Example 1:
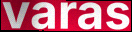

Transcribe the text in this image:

varas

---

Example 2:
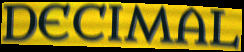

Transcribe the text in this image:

DECIMAL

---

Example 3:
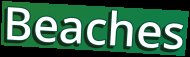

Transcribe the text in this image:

Beaches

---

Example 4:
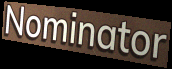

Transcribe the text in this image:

Nominator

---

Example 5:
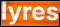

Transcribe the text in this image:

lyres